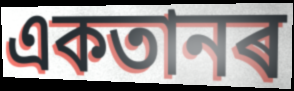
একতানৰ